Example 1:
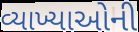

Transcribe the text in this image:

વ્યાખ્યાઓની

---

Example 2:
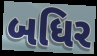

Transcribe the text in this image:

બધિર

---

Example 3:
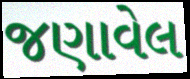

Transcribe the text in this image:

જણાવેલ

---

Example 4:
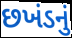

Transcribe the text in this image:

છખંડનું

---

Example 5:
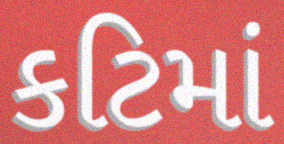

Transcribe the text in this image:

કટિમાં